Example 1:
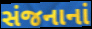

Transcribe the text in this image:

સંજનાનાં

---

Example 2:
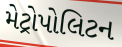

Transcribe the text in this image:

મેટ્રોપોલિટન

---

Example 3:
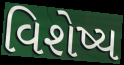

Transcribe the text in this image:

વિશેષ્ય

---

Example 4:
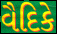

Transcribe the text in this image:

વૈદિકે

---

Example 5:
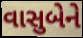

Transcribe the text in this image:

વાસુબેને